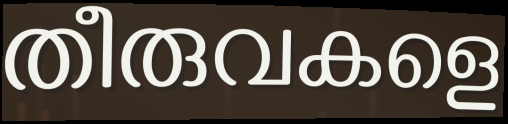
തീരുവകളെ